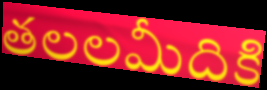
తలలమీదికి